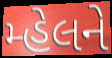
મ્હેલને